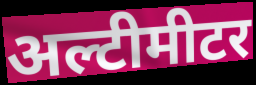
अल्टीमीटर